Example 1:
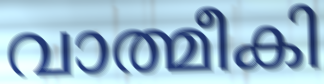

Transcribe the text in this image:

വാത്മീകി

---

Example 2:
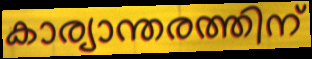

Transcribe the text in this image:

കാര്യാന്തരത്തിന്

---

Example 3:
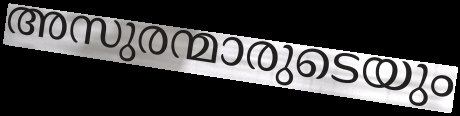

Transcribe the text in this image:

അസുരന്മാരുടെയും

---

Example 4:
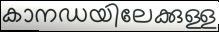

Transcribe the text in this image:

കാനഡയിലേക്കുള്ള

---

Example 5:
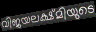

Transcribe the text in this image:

വിജയലക്ഷ്മിയുടെ